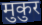
मुकुर